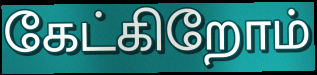
கேட்கிறோம்